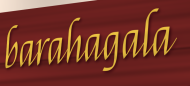
barahagala